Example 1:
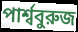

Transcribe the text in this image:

পার্শ্ববুরুজ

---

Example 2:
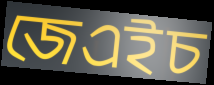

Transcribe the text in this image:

জেএইচ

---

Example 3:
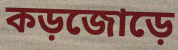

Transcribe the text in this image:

কড়জোড়ে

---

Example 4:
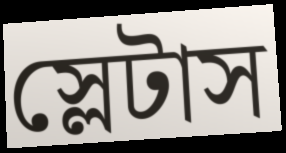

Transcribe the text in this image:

স্লেটাস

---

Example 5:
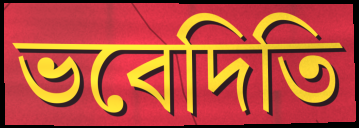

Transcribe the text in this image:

ভবেদিতি